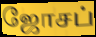
ஜோசப்